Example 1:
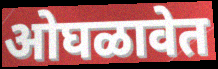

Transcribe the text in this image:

ओघळावेत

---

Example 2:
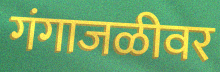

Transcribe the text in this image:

गंगाजळीवर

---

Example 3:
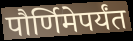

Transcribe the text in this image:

पौर्णिमेपर्यंत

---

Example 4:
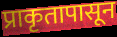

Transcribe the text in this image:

प्राकृतापासून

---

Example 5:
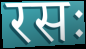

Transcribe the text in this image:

रसः